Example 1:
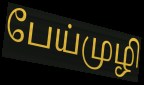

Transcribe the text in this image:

பேய்முழி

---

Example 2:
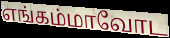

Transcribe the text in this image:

எங்கம்மாவோட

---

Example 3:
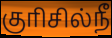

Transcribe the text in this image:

குரிசில்நீ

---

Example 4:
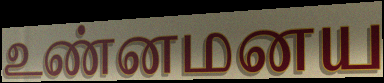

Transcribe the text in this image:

உண்னமனய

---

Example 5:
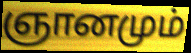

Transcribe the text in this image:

ஞானமும்